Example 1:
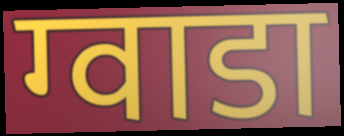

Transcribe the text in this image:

ग्वाडा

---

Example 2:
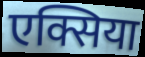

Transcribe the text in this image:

एक्सिया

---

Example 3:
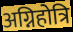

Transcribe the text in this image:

अग्निहोत्रि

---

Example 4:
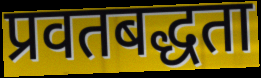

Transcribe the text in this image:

प्रवतबद्धता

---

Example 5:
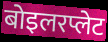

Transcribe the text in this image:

बोइलरप्लेट